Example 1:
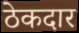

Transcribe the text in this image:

ठेकदार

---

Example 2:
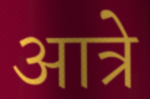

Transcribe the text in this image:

आत्रे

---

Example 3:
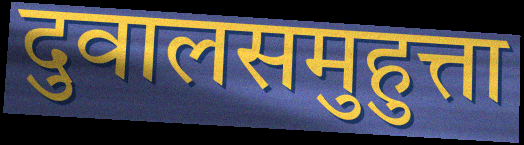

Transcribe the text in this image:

दुवालसमुहुत्ता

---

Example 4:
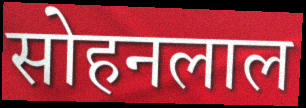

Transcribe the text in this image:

सोहनलाल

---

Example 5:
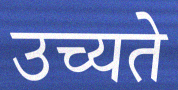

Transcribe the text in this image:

उच्यते